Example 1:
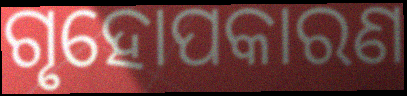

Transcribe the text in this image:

ଗୃହୋପକାରଣ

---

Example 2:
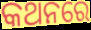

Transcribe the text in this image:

କଥନରେ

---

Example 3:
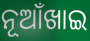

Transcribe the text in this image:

ନୂଆଁଖାଇ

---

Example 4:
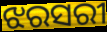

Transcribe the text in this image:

ଝରସରୀ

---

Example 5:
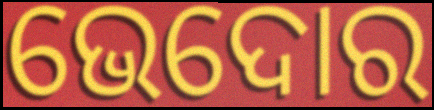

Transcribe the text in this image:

ଭେଦୋର